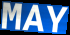
MAY